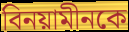
বিনয়ামীনকে